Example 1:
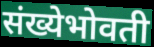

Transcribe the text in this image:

संख्येभोवती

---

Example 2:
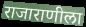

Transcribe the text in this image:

राजाराणीला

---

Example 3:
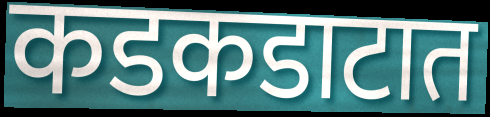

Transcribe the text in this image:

कडकडाटात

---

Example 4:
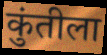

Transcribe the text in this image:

कुंतीला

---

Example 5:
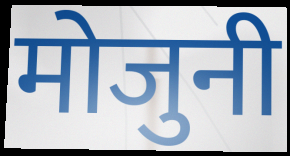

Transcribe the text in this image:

मोजुनी